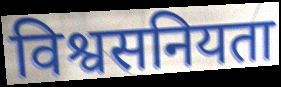
विश्वसनियता